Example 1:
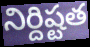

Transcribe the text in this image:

నిర్దిష్టత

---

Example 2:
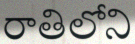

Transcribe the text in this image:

రాతిలోని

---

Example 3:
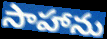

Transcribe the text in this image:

సాహాను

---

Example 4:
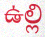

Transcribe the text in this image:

ఉల్లి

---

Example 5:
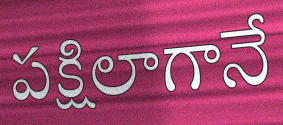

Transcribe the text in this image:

పక్షిలాగానే